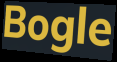
Bogle